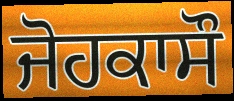
ਜੋਹਕਾਸੌ